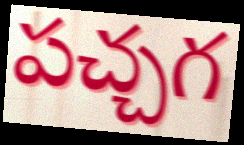
పచ్చగ